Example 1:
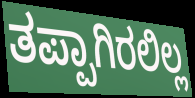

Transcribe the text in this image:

ತಪ್ಪಾಗಿರಲಿಲ್ಲ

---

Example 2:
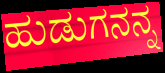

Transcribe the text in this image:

ಹುಡುಗನನ್ನ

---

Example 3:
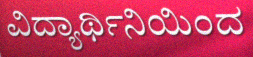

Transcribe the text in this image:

ವಿದ್ಯಾರ್ಥಿನಿಯಿಂದ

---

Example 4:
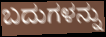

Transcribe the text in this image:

ಬದುಗಳನ್ನು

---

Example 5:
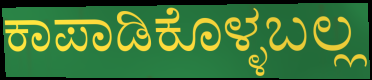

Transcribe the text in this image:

ಕಾಪಾಡಿಕೊಳ್ಳಬಲ್ಲ